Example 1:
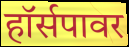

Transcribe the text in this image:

हॉर्सपावर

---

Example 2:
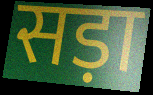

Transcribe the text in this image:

सड़ा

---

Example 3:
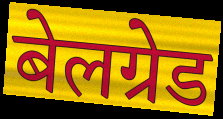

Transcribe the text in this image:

बेलग्रेड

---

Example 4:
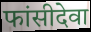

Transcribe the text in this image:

फांसीदेवा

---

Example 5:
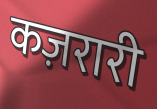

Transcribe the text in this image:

कज़रारी